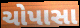
ચોપાસા